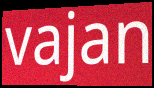
vajan